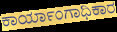
ಕಾರ್ಯಾಂಗಾಧಿಕಾರ